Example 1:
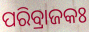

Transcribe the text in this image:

ପରିବ୍ରାଜକଃ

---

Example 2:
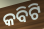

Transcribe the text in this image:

କବିଟି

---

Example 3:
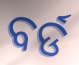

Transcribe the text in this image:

ବର୍ଡ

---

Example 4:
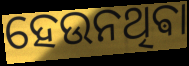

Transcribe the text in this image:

ହେଉନଥିଵା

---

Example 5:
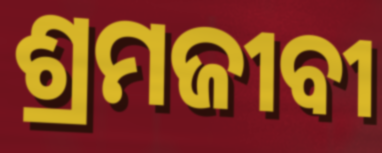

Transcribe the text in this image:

ଶ୍ରମଜୀବୀ